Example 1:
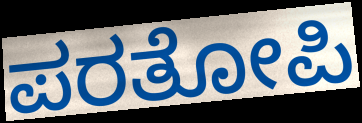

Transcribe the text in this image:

ಪರತೋಪಿ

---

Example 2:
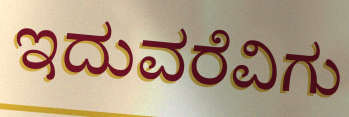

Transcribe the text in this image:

ಇದುವರೆವಿಗು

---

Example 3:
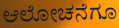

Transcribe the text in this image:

ಆಲೋಚನೆಗೂ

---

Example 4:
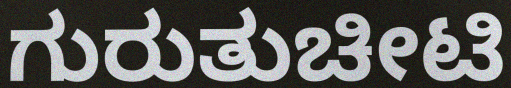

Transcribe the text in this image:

ಗುರುತುಚೀಟಿ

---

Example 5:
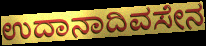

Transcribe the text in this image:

ಉದಾನಾದಿವಸೇನ